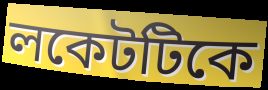
লকেটটিকে